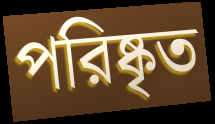
পরিষ্কৃত